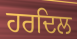
ਹਰਦਿਲ